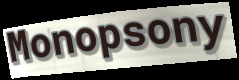
Monopsony